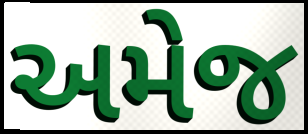
અમેજ